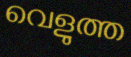
വെളുത്ത